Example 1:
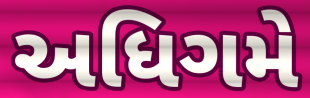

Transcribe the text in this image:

અધિગમે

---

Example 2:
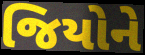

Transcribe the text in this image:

જિયોને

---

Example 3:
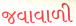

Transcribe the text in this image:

જવાવાળી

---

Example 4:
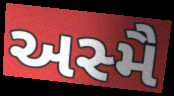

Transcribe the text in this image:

અસ્મૈ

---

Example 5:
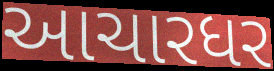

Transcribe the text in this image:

આચારધર